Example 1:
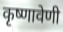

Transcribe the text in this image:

कृष्णावेणी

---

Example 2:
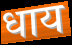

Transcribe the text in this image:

धाय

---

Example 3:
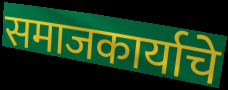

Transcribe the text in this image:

समाजकार्याचे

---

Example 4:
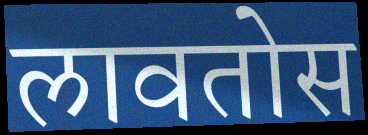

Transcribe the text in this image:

लावतोस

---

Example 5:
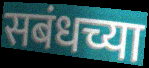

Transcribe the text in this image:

सबंधच्या